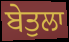
ਬੇਤੁਲਾ